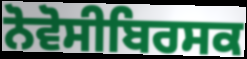
ਨੋਵੋਸੀਬਿਰਸਕ